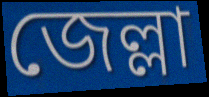
জেল্লা